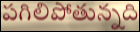
పగిలిపోతున్నది